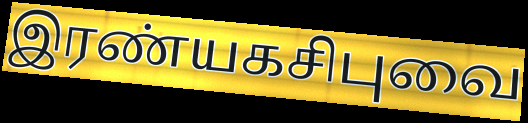
இரண்யகசிபுவை